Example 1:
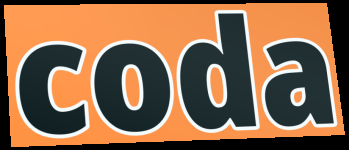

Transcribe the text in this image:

coda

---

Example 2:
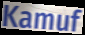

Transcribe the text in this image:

Kamuf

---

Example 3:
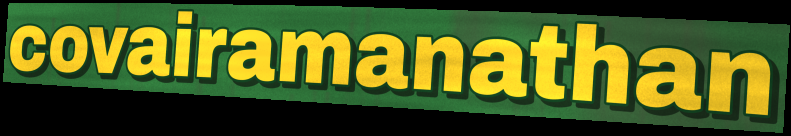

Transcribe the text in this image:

covairamanathan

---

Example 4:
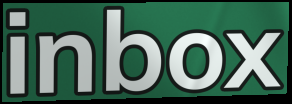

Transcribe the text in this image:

inbox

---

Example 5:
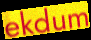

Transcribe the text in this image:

ekdum